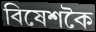
বিষেশকৈ